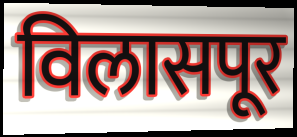
विलासपूर